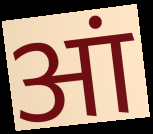
आं